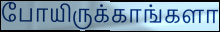
போயிருக்காங்களா